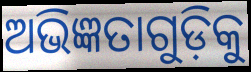
ଅଭିଜ୍ଞତାଗୁଡ଼ିକୁ